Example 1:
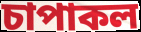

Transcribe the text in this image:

চাপাকল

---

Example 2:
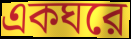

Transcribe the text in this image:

একঘরে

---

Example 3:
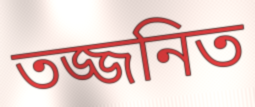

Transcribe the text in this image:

তজ্জনিত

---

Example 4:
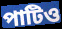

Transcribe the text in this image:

পাটিও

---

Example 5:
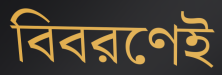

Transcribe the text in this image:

বিবরণেই